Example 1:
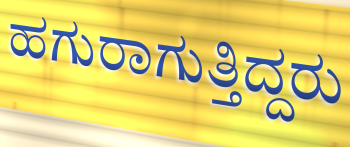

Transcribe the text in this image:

ಹಗುರಾಗುತ್ತಿದ್ದರು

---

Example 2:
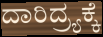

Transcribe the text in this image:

ದಾರಿದ್ರ್ಯಕ್ಕೆ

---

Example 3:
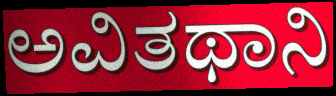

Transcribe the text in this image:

ಅವಿತಥಾನಿ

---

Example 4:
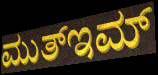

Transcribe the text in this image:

ಮುತ್ಇಮ್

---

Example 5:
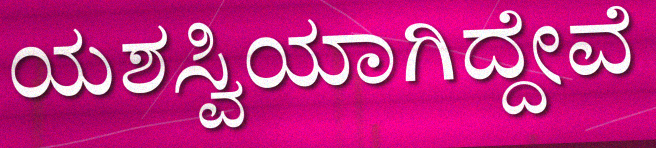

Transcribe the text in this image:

ಯಶಸ್ವಿಯಾಗಿದ್ದೇವೆ